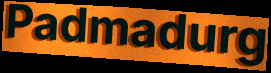
Padmadurg